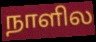
நாளில